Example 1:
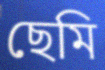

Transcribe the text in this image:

ছেমি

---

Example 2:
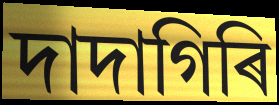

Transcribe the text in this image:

দাদাগিৰি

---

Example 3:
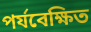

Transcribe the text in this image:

পৰ্যবেক্ষিত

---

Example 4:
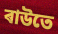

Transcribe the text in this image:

ৰাউতে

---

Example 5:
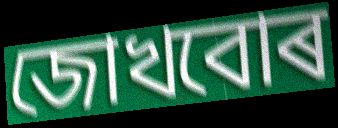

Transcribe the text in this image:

জোখবোৰ